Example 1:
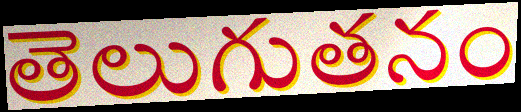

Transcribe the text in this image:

తెలుగుతనం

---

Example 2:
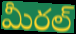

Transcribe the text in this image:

మీరల్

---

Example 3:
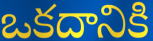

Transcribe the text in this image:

ఒకదానికి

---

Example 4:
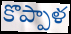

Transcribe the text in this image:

కొప్పాళ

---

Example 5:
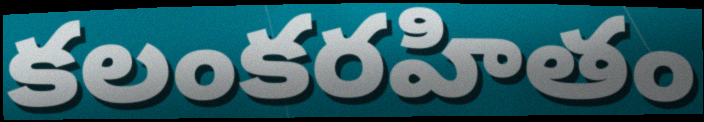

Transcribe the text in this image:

కలంకరహితం